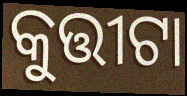
କୁତ୍ତୀଟା